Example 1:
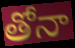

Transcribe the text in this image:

తోనా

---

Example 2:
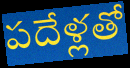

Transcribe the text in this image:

పదేళ్లతో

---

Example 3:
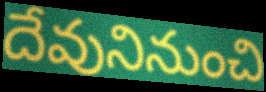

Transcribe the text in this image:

దేవునినుంచి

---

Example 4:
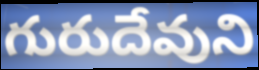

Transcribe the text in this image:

గురుదేవుని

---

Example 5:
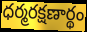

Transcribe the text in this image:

ధర్మరక్షణార్థం